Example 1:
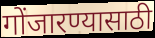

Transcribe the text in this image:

गोंजारण्यासाठी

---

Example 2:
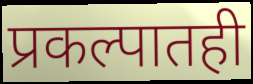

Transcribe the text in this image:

प्रकल्पातही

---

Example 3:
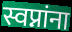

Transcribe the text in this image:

स्वप्नांना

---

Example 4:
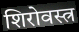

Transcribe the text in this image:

शिरोवस्त्र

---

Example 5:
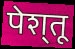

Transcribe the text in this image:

पेश्तू